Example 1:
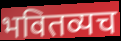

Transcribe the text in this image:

भवितव्यच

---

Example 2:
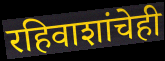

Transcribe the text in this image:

रहिवाशांचेही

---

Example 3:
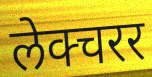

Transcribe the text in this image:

लेक्चरर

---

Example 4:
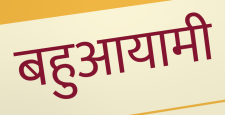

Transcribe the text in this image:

बहुआयामी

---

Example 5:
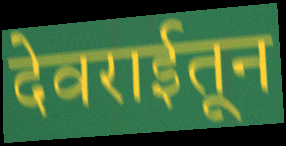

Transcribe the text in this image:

देवराईतून